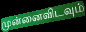
முன்னைவிடவும்